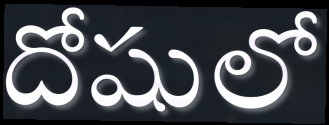
దోషులో